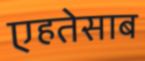
एहतेसाब